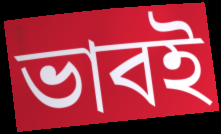
ভাবই